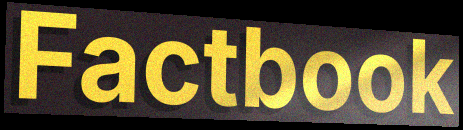
Factbook